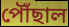
পৌঁছাল